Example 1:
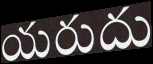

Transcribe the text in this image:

యరుదు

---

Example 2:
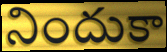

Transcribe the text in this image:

నిందుకా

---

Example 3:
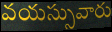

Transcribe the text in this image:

వయస్సువారు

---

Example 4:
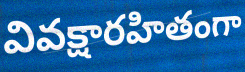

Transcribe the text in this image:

వివక్షారహితంగా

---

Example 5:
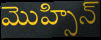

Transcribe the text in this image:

మొహ్సిన్